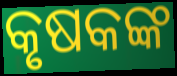
କୃଷକଙ୍କ